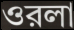
ওরলা